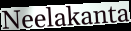
Neelakanta